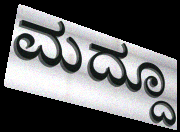
ಮದ್ದೂ